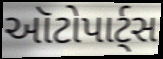
ઑટોપાર્ટ્સ